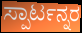
ಸ್ಪಾರ್ಟನ್ನರ